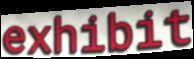
exhibit